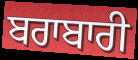
ਬਰਾਬਾਰੀ